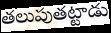
తలుపుతట్టాడు